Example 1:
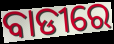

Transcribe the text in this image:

ବାଡୀରେ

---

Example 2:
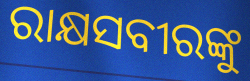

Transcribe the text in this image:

ରାକ୍ଷସବୀରଙ୍କୁ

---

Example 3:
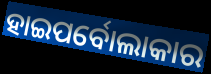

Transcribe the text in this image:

ହାଇପର୍ବୋଲାକାର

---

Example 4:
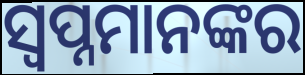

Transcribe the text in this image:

ସ୍ବପ୍ନମାନଙ୍କର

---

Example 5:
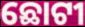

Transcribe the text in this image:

ଛୋଟୀ